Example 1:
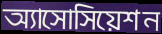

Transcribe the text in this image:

অ্যাসোসিয়েশন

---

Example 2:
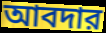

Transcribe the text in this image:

আবদার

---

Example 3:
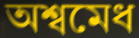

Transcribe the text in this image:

অশ্বমেধ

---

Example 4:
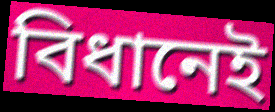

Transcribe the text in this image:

বিধানেই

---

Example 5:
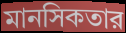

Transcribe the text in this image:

মানসিকতার